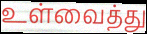
உள்வைத்து